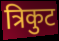
त्रिकुट